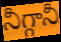
నీగ్గానీ